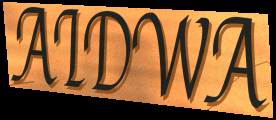
AIDWA